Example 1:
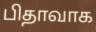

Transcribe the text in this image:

பிதாவாக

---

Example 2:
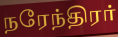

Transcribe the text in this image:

நரேந்திரர்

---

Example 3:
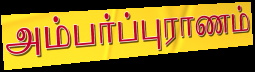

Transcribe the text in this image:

அம்பர்ப்புராணம்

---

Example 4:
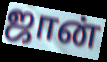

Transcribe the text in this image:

ஜான்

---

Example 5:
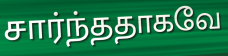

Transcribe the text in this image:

சார்ந்ததாகவே